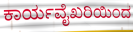
ಕಾರ್ಯವೈಖರಿಯಿಂದ